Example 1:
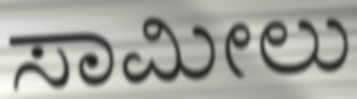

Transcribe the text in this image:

ಸಾಮೀಲು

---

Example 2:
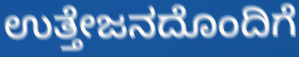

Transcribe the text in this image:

ಉತ್ತೇಜನದೊಂದಿಗೆ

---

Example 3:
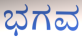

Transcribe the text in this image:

ಭಗವ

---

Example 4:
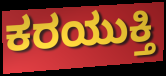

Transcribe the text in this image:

ಕರಯುಕ್ತಿ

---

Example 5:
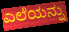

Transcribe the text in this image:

ಎಲೆಯನ್ನು